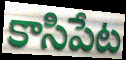
కాసిపేట